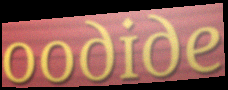
oodide